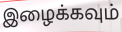
இழைக்கவும்